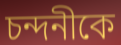
চন্দনীকে